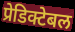
प्रेडिक्टेबल